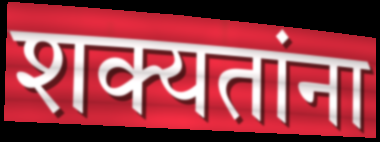
शक्यतांना